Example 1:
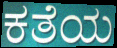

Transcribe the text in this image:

ಕತೆಯ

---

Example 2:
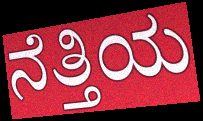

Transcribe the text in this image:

ನೆತ್ತಿಯ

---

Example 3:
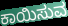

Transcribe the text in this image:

ಕಾಯಿಸುವ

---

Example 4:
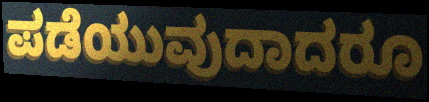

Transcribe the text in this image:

ಪಡೆಯುವುದಾದರೂ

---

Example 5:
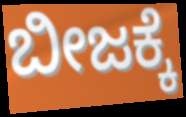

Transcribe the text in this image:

ಬೀಜಕ್ಕೆ